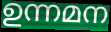
ഉന്നമന